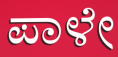
ಪಾಳೇ